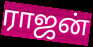
ராஜன்